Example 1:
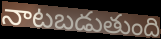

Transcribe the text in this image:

నాటబడుతుంది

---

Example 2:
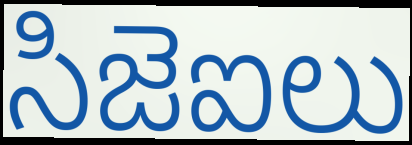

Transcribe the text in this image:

సిజెఐలు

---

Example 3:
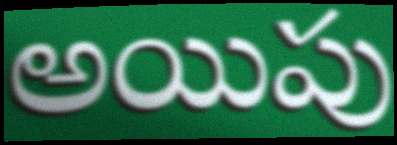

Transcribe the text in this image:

అయిపు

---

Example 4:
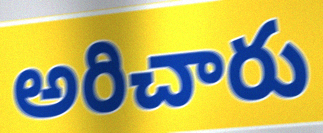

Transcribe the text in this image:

అరిచారు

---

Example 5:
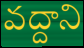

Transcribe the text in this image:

వద్దాని